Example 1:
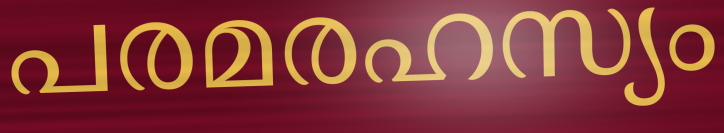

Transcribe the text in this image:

പരമരഹസ്യം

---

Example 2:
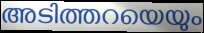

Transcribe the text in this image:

അടിത്തറയെയും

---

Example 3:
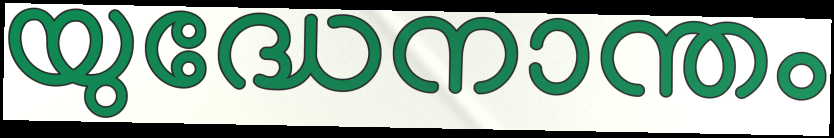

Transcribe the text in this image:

യുദ്ധേനാന്തം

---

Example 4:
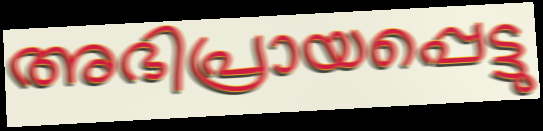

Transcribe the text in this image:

അഭിപ്രായപ്പെട്ടു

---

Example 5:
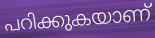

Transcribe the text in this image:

പറിക്കുകയാണ്